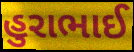
હુરાભાઈ